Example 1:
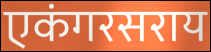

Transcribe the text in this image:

एकंगरसराय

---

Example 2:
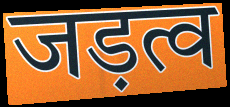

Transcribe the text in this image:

जड़त्व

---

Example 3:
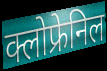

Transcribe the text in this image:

क्लोफ्रेनिल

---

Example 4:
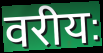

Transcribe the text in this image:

वरीयः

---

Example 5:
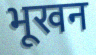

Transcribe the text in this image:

भूखन